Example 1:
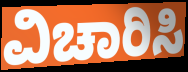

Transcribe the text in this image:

ವಿಚಾರಿಸಿ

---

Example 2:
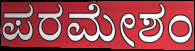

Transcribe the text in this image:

ಪರಮೇಶಂ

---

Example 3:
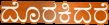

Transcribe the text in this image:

ದೊರಕಿದರೆ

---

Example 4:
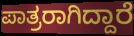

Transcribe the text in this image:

ಪಾತ್ರರಾಗಿದ್ದಾರೆ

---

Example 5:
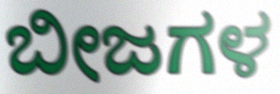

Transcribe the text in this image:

ಬೀಜಗಳ